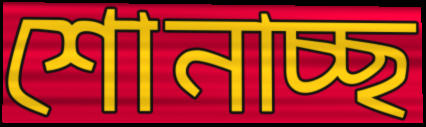
শোনাচ্ছ